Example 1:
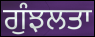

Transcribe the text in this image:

ਗੁੰਝਲਤਾ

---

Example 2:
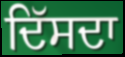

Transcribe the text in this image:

ਦਿੱਸਦਾ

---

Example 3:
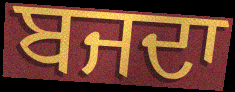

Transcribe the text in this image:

ਬਜਦਾ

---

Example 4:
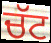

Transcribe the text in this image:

ਚੱਟ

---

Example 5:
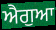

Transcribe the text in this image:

ਐਗੁਆ